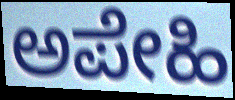
ಅಪೇಹಿ